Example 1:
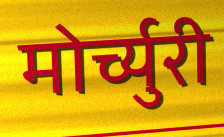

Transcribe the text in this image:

मोर्च्युरी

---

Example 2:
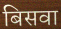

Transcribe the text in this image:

बिसवा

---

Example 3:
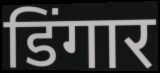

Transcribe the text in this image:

डिंगार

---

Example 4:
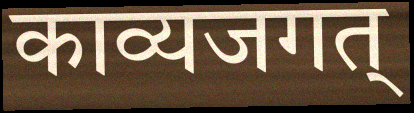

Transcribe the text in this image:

काव्यजगत्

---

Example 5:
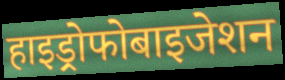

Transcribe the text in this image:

हाइड्रोफोबाइजेशन